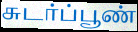
சுடர்ப்பூண்